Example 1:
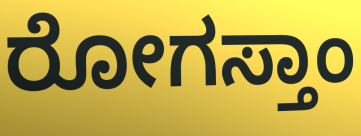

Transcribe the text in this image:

ರೋಗಸ್ತಾಂ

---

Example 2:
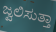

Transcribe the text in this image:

ಜ್ವಲಿಸುತ್ತಾ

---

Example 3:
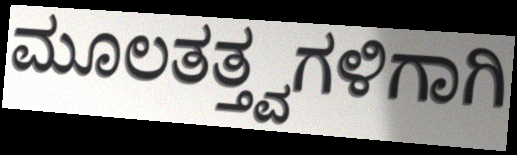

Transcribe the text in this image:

ಮೂಲತತ್ತ್ವಗಳಿಗಾಗಿ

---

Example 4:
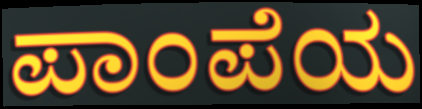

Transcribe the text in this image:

ಪಾಂಪೆಯ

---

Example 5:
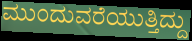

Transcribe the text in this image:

ಮುಂದುವರೆಯುತ್ತಿದ್ದು